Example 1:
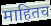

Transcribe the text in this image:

माहितच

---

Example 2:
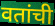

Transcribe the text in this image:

वतांची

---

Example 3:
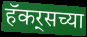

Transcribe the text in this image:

हॅकर्सच्या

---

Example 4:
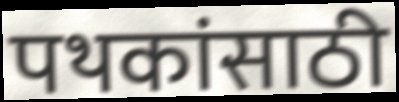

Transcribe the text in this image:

पथकांसाठी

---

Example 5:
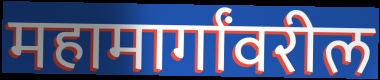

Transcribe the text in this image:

महामार्गांवरील